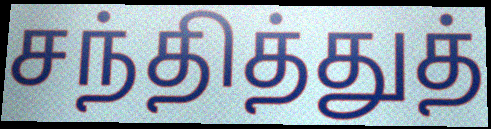
சந்தித்துத்